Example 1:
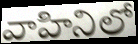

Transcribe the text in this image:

వాహినిలో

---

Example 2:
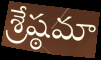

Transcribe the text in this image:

శ్రేష్ఠమా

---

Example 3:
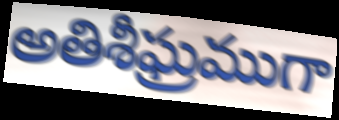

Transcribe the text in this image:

అతిశీఘ్రముగా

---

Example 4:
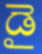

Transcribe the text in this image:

డై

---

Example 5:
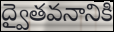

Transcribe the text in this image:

ద్వైతవనానికి